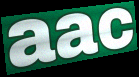
aac